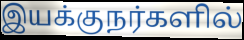
இயக்குநர்களில்